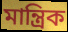
মান্ত্রিক